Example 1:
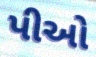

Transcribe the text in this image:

પીઓ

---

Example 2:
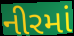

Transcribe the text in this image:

નીરમાં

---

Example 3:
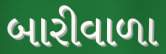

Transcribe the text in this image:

બારીવાળા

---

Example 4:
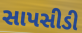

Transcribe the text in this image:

સાપસીડી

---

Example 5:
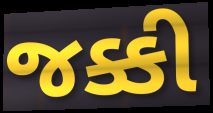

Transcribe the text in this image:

જક્કી